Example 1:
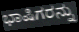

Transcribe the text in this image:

ಭಾಷಿಗರನ್ನು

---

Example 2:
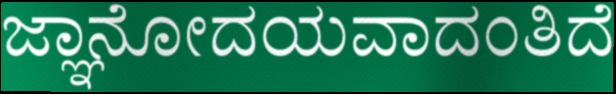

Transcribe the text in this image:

ಜ್ಞಾನೋದಯವಾದಂತಿದೆ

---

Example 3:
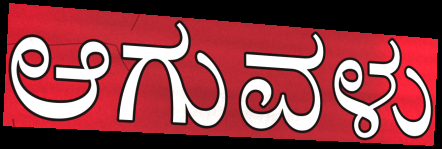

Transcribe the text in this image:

ಆಗುವಳು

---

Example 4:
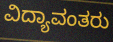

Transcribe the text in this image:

ವಿದ್ಯಾವಂತರು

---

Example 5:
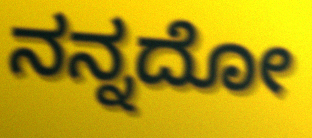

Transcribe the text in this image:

ನನ್ನದೋ